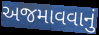
અજમાવવાનું